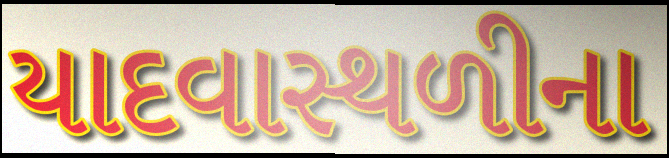
યાદવાસ્થળીના